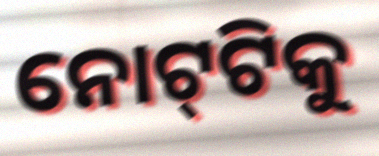
ନୋଟ୍‌ଟିକୁ